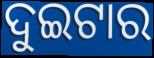
ଦୁଇଟାର